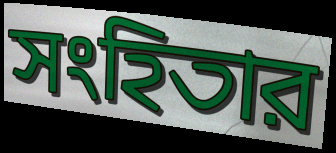
সংহিতার